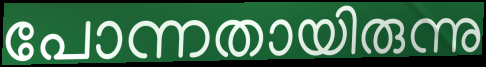
പോന്നതായിരുന്നു